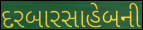
દરબારસાહેબની